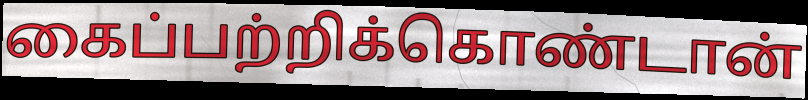
கைப்பற்றிக்கொண்டான்